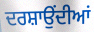
ਦਰਸ਼ਾਉਂਦੀਆਂ